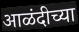
आळंदीच्या